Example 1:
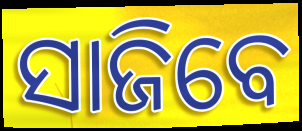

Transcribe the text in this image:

ସାଜିବେ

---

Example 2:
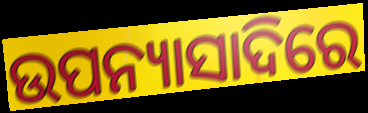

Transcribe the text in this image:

ଉପନ୍ୟାସାଦିରେ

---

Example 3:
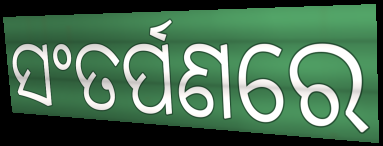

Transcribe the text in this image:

ସଂତର୍ପଣରେ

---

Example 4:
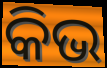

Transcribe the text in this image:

କିଭ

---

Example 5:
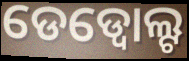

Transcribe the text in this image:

ଡେଡ୍ବୋଲ୍ଟ